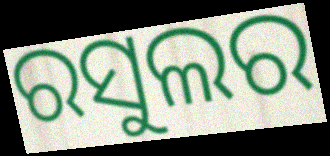
ରସୁଲର